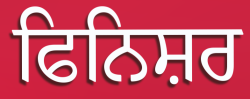
ਫਿਨਿਸ਼ਰ